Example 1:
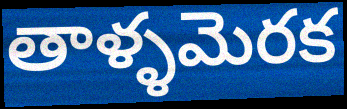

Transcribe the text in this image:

తాళ్ళమెరక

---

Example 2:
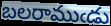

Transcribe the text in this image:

బలరాముఁడు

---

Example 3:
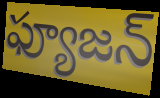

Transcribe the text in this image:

ఫ్యూజన్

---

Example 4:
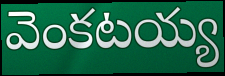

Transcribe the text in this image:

వెంకటయ్య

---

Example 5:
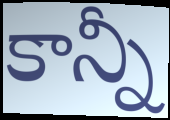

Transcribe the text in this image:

కాన్నీ